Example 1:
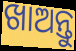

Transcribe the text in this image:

ଖାଅନ୍ତୁ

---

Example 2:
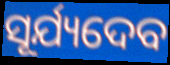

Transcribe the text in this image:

ସୂର୍ଯ୍ୟଦେବ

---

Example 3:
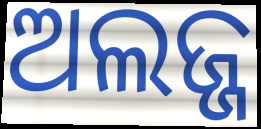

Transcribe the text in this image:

ଅଲଜ୍ଜ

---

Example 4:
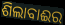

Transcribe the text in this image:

ଶିଲାବାଈର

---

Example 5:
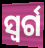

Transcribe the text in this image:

ସ୍ବର୍ଗ